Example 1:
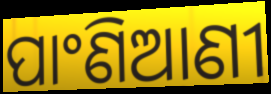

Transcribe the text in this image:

ପାଂଣିଆଣୀ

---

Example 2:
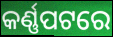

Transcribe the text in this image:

କର୍ଣ୍ଣପଟରେ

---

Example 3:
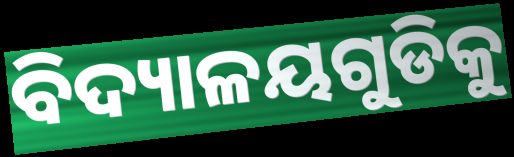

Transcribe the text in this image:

ବିଦ୍ୟାଳୟଗୁଡିକୁ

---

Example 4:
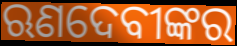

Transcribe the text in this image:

ଋଣଦେବୀଙ୍କର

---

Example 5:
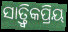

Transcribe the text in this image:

ସାତ୍ତ୍ଵିକପ୍ରିୟ